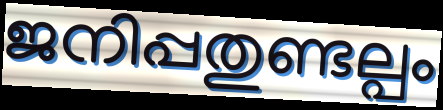
ജനിപ്പതുണ്ടല്പം